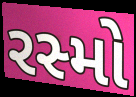
રસ્મો